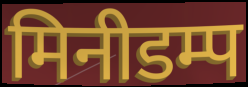
मिनीडम्प